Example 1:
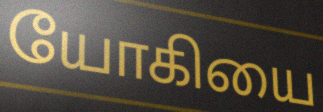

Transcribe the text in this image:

யோகியை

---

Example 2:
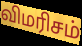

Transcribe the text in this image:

விமரிசம்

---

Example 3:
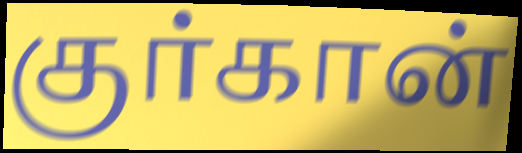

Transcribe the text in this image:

குர்கான்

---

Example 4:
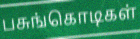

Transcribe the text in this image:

பசுங்கொடிகள்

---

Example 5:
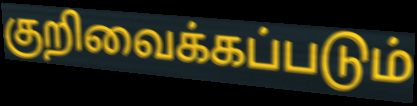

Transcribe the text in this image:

குறிவைக்கப்படும்